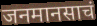
जनमानसाचं